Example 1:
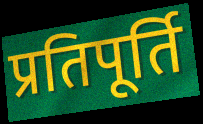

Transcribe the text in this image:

प्रतिपूर्ति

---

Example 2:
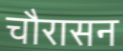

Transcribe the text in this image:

चौरासन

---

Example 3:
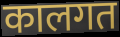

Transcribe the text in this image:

कालगत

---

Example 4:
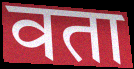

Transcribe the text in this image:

वता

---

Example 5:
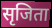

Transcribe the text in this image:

सृजिता